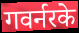
गवर्नरके